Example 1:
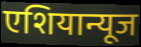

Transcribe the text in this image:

एशियान्यूज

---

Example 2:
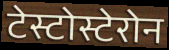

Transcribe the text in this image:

टेस्‍टोस्‍टेरोन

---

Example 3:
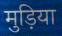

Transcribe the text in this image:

मुड़िया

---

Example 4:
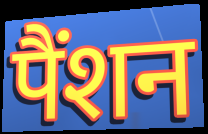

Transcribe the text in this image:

पैंशन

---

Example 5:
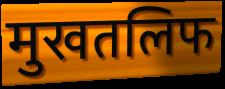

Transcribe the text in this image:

मुखतलिफ